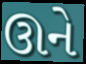
ઊને